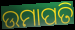
ଉମାପତି